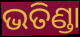
ଭତିଣ୍ଡା